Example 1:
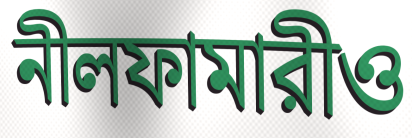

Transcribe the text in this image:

নীলফামারীও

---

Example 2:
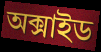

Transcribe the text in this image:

অক্সাইড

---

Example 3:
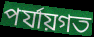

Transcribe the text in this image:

পর্যায়গত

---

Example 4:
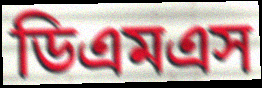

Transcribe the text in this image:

ডিএমএস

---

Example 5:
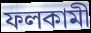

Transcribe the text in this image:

ফলকামী